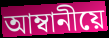
আম্বানীয়ে